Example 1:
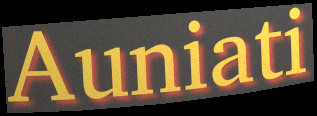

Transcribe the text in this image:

Auniati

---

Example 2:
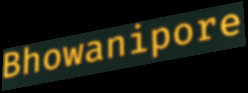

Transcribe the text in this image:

Bhowanipore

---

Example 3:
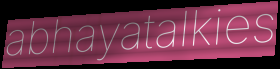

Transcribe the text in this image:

abhayatalkies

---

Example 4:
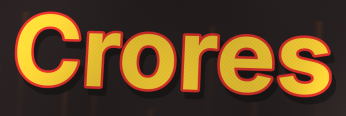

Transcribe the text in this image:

Crores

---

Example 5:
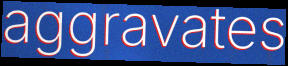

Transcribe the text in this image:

aggravates